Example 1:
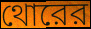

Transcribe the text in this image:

থোরের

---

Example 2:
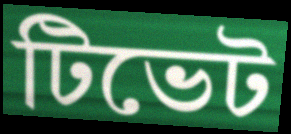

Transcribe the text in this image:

টিভেট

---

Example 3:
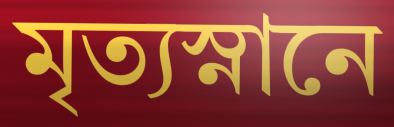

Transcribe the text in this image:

মৃত্যস্নানে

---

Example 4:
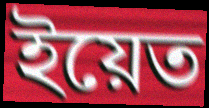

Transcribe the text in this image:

ইয়েত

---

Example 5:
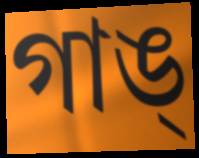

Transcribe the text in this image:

গাঙ্